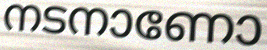
നടനാണോ